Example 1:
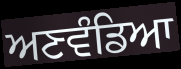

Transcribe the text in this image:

ਅਣਵੰਡਿਆ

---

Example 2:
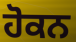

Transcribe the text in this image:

ਹੋਕਨ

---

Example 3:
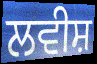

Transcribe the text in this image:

ਲਵੀਸ਼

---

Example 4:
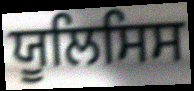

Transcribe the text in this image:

ਯੂਲਿਸਿਸ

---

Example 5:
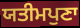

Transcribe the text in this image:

ਯਤੀਮਪੁਣਾ